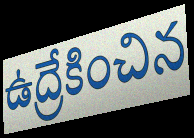
ఉద్రేకించిన